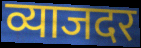
व्याजदर